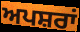
ਅਪਸ਼ਰਾਂ